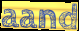
aand